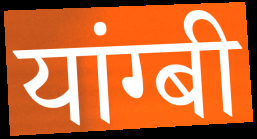
यांग्बी